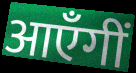
आएँगीं